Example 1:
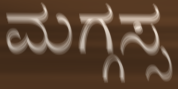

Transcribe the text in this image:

ಮಗ್ಗಸ್ಸ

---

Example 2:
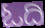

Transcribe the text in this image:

ಓದಿ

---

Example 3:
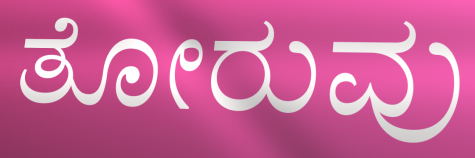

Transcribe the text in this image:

ತೋರುವು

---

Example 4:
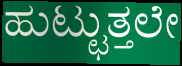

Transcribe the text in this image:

ಹುಟ್ಟುತ್ತಲೇ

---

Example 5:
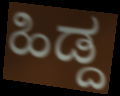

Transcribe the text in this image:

ಹಿಡ್ದ